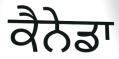
ਕੈਨੇਡਾ